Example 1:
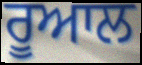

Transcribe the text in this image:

ਰੂਆਲ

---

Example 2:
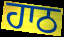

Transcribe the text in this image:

ਹਾਠ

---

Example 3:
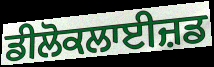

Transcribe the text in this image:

ਡੀਲੋਕਲਾਈਜ਼ਡ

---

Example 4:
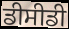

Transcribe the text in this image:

ਡੀਸੀਡੀ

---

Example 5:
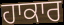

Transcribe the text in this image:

ਹਾਕਾਰ